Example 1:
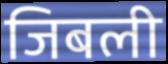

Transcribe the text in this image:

जिबली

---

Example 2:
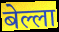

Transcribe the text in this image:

बेल्ला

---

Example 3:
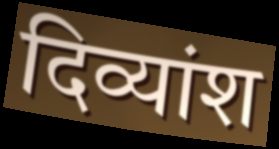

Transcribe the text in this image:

दिव्यांश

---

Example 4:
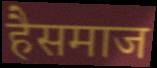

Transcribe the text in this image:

हैसमाज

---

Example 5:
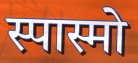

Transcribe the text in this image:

स्पास्मो